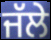
ਜੱਲੇ